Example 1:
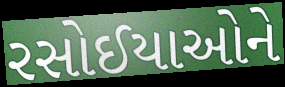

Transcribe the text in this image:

રસોઈયાઓને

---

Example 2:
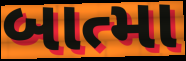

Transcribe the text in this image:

બાત્મા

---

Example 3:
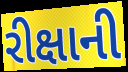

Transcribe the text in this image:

રીક્ષાની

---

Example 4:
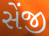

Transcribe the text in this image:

સેંજી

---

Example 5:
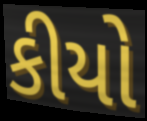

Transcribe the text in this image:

કીયો